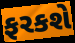
ફરકશે